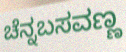
ಚೆನ್ನಬಸವಣ್ಣ